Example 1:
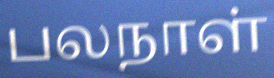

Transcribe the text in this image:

பலநாள்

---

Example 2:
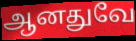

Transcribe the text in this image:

ஆனதுவே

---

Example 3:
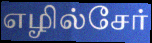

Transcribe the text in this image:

எழில்சேர்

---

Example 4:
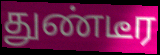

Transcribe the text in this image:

துண்டீர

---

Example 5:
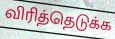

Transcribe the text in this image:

விரித்தெடுக்க